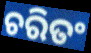
ଚରିତଂ